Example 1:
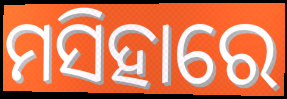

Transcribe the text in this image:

ମସିହାରେ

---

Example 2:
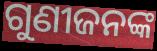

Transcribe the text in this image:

ଗୁଣୀଜନଙ୍କ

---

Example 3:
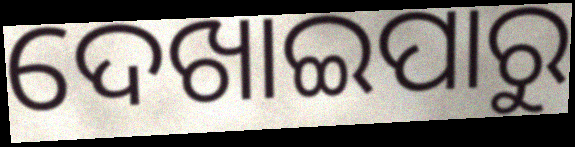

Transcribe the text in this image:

ଦେଖାଇପାରୁ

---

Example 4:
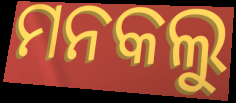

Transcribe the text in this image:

ମନକଲୁ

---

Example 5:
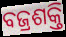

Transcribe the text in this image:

ବଜ୍ରଶକ୍ତି